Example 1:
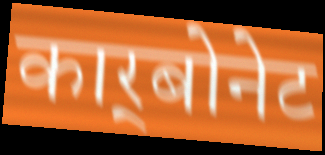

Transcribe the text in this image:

कार्बोनेट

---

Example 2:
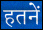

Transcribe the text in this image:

हतनें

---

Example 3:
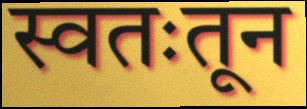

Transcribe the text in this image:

स्वतःतून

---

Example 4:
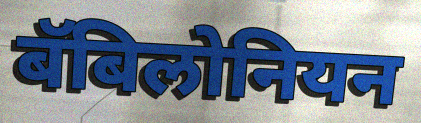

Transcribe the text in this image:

बॅबिलोनियन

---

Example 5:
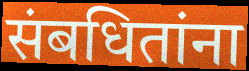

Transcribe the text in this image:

संबधितांना